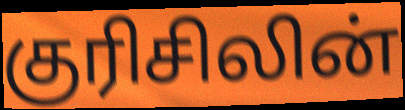
குரிசிலின்